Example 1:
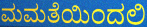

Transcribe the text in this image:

ಮಮತೆಯಿಂದಲಿ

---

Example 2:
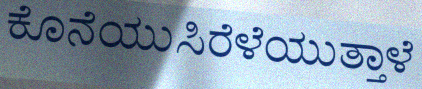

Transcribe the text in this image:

ಕೊನೆಯುಸಿರೆಳೆಯುತ್ತಾಳೆ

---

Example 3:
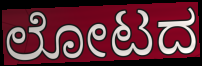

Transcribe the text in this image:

ಲೋಟದ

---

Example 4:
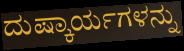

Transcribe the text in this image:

ದುಷ್ಕಾರ್ಯಗಳನ್ನು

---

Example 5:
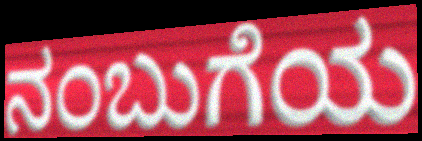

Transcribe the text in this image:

ನಂಬುಗೆಯ